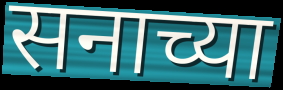
सनाच्या